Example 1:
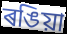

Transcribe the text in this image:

ৰঙিয়া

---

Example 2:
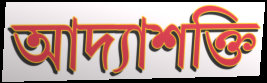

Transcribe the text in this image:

আদ্যাশক্তি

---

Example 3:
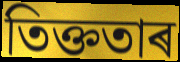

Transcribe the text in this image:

তিক্ততাৰ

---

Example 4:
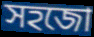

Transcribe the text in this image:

সহজো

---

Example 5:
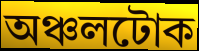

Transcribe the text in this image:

অঞ্চলটোক